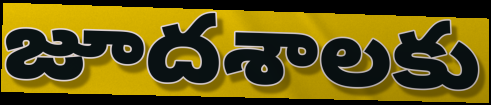
జూదశాలకు